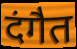
दंगैत